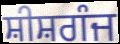
ਸ਼ੀਸ਼ਗੰਜ